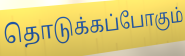
தொடுக்கப்போகும்